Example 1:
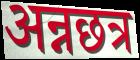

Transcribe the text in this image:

अन्नछत्र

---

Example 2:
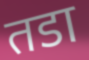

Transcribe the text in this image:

तडा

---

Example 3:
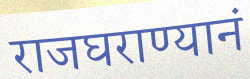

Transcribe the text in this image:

राजघराण्यानं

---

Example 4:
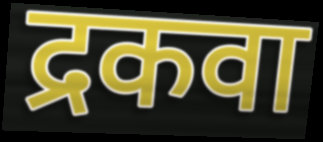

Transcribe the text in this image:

द्रकवा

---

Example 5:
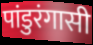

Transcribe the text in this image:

पांडुरंगासी